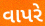
વાપરે